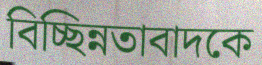
বিচ্ছিন্নতাবাদকে